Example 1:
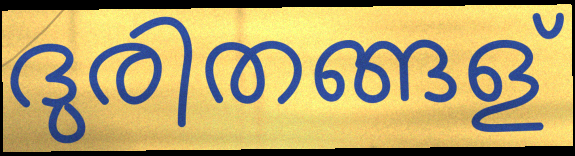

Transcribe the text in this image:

ദുരിതങ്ങള്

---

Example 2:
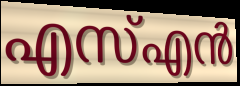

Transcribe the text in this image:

എസ്എൻ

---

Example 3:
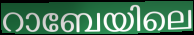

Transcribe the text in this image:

റാബേയിലെ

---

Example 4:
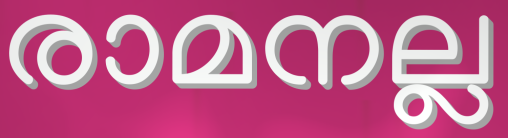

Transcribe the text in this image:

രാമനല്ല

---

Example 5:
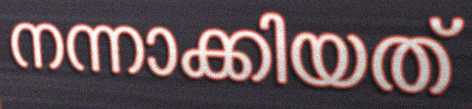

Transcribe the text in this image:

നന്നാക്കിയത്